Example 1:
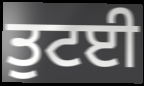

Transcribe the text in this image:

ਤੁਟਈ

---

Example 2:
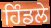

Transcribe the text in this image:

ਹਿੰਡਲੇ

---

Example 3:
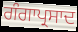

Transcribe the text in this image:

ਗੰਗਾਪ੍ਰਸਾਦ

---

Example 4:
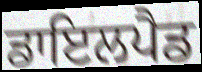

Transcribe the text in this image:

ਡਾਇਲਪੈਡ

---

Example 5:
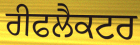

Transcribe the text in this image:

ਰੀਫਲੈਕਟਰ